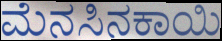
ಮೆನಸಿನಕಾಯಿ